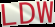
LDW